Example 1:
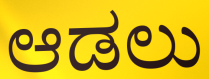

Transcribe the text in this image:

ಆಡಲು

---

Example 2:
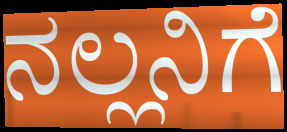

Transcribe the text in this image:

ನಲ್ಲನಿಗೆ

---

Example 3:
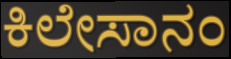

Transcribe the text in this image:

ಕಿಲೇಸಾನಂ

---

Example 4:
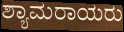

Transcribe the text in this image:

ಶ್ಯಾಮರಾಯರು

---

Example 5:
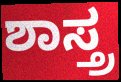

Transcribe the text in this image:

ಶಾಸ್ತ್ರ